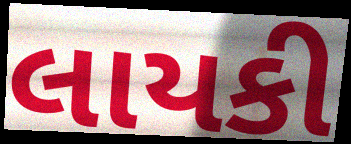
લાયકી